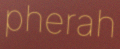
pherah